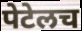
पेटेलच